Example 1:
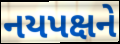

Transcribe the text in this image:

નયપક્ષને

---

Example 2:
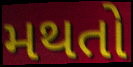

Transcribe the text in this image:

મથતો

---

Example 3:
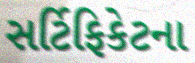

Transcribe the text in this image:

સર્ટિફિકેટના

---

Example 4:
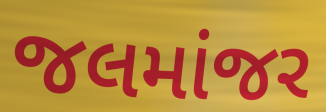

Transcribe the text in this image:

જલમાંજર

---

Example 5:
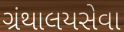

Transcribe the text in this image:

ગ્રંથાલયસેવા